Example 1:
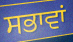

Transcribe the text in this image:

ਸਭਾਵਾਂ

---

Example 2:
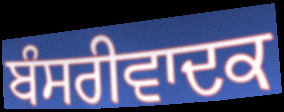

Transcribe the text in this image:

ਬੰਸਰੀਵਾਦਕ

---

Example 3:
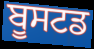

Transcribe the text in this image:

ਬੂਸਟਡ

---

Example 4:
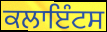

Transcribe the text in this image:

ਕਲਾਇੰਟਸ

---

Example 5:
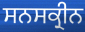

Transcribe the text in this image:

ਸਨਸਕ੍ਰੀਨ